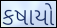
કષાયો